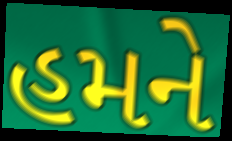
હમને